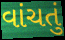
વાંચતું